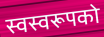
स्वस्वरूपको